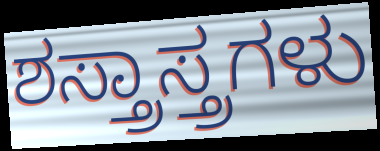
ಶಸ್ತ್ರಾಸ್ತ್ರಗಳು